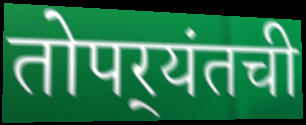
तोपर्यंतची